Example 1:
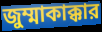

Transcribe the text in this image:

জুম্মাকাক্কার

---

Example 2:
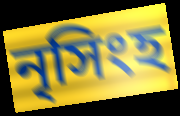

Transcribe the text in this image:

নৃসিংহ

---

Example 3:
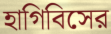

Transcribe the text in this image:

হাগিবিসের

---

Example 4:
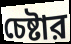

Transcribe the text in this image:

চেষ্টার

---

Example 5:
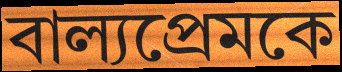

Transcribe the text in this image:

বাল্যপ্রেমকে